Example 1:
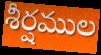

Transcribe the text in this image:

శీర్షముల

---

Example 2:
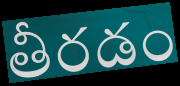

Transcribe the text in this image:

తీరడం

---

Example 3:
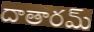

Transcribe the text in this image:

దాతారమ్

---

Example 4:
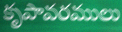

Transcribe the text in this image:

కృపావరములు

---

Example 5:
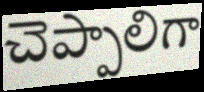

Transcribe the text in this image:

చెప్పాలిగా